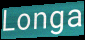
Longa